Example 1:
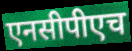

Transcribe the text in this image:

एनसीपीएच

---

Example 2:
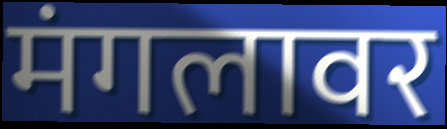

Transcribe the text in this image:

मंगलावर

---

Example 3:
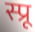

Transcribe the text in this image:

स्प्रू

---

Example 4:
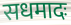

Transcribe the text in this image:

सधमादः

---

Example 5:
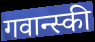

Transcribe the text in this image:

गवान्स्की